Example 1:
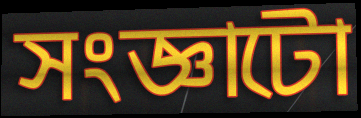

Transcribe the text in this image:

সংজ্ঞাটো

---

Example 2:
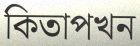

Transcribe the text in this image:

কিতাপখন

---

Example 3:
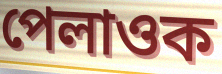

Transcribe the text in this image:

পেলাওক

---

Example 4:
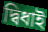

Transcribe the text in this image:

দ্বিধাই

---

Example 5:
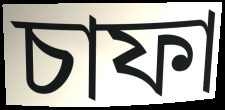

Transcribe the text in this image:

চাফা